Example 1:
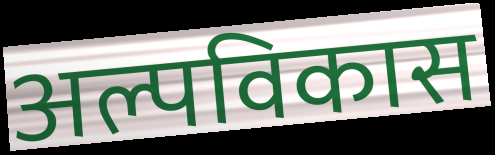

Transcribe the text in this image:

अल्पविकास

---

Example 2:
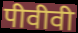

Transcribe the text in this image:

पीवीवी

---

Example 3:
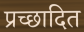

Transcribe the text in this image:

प्रच्छादित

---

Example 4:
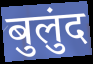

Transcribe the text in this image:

बुलुंद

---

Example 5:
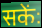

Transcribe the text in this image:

सकेंः